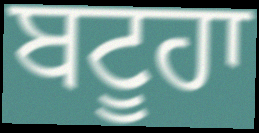
ਬਟੂਹਾ